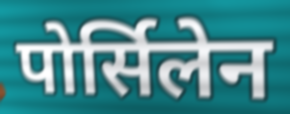
पोर्सिलेन